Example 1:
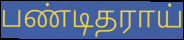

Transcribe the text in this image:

பண்டிதராய்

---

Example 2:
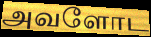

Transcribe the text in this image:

அவளோட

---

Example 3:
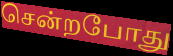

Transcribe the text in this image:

சென்றபோது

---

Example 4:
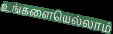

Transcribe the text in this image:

உங்களையெல்லாம்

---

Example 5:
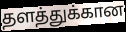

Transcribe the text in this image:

தளத்துக்கான